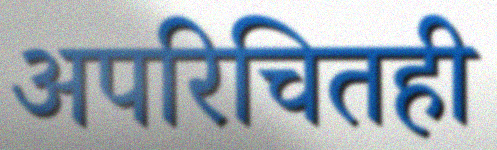
अपरिचितही